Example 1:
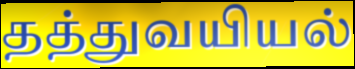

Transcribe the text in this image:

தத்துவயியல்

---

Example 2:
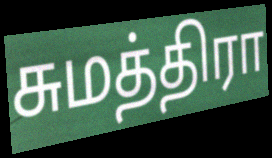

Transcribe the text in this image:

சுமத்திரா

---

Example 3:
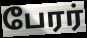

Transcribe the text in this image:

பேரர்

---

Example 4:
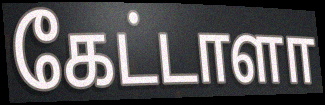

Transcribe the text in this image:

கேட்டாளா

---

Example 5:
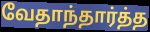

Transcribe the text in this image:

வேதாந்தார்த்த